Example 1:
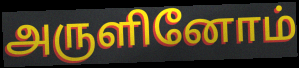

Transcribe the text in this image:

அருளினோம்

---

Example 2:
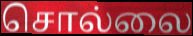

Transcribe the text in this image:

சொல்லை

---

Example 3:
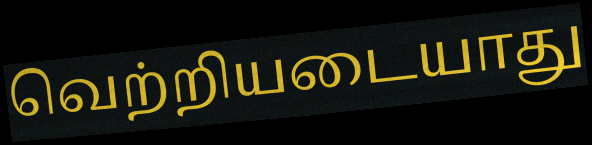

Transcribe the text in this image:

வெற்றியடையாது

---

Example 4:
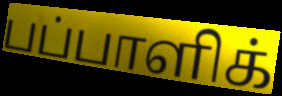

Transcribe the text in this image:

பப்பாளிக்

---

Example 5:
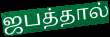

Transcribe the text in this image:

ஜபத்தால்